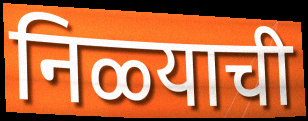
निळ्याची